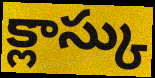
క్లాస్కు